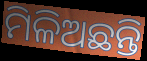
ମିଳିଅଛନ୍ତି